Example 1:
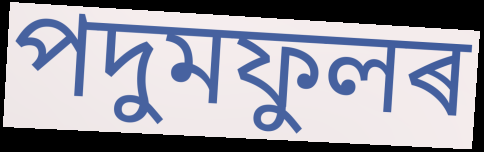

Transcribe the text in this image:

পদুমফুলৰ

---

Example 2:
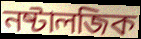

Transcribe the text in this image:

নষ্টালজিক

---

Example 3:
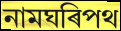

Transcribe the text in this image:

নামঘৰিপথ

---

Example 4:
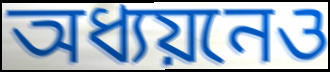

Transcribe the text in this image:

অধ্যয়নেও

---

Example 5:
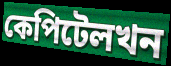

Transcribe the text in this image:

কেপিটেলখন